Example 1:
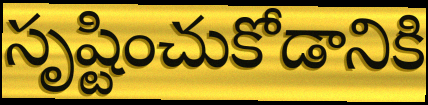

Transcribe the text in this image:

సృష్టించుకోడానికి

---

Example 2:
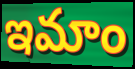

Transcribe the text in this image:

ఇమాం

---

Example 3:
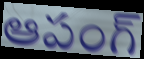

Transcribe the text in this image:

ఆపంగ్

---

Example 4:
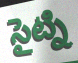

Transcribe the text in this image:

సైట్ని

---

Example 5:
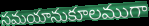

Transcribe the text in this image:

సమయానుకూలముగా